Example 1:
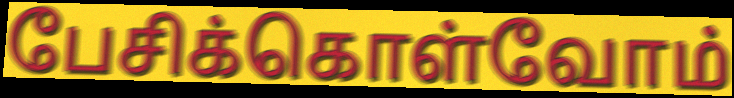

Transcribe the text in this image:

பேசிக்கொள்வோம்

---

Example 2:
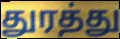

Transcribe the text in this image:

துரத்து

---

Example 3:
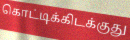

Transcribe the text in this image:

கொட்டிக்கிடக்குது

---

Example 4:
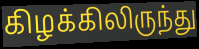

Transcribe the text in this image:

கிழக்கிலிருந்து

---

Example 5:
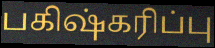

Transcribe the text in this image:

பகிஷ்கரிப்பு